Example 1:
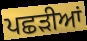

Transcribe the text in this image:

ਪਛੜੀਆਂ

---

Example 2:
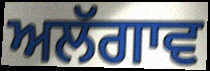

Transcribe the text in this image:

ਅਲੱਗਾਵ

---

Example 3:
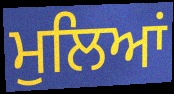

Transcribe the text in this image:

ਮੁਲਿਆਂ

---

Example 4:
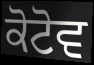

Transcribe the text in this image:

ਕੋਟੋਵ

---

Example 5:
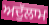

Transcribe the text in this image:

ਅਦੁੱਲਾਮ